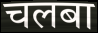
चलबा